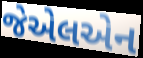
જેએલએન